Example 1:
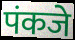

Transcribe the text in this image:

पंकजे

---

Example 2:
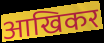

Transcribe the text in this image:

आखिकर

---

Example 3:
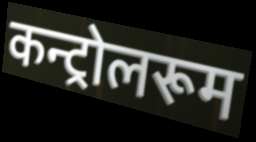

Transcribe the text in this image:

कन्ट्रोलरूम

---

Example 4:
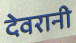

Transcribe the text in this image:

देवरानी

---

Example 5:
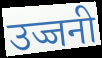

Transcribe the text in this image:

उज्जनी